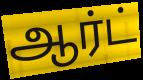
ஆர்ட்